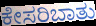
ಕೇಸರಿಬಾತು